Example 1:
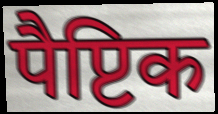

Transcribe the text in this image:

पैप्टिक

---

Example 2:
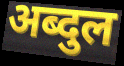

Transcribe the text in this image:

अब्दुल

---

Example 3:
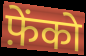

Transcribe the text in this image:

फ़ेंको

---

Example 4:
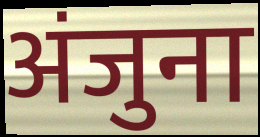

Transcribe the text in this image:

अंजुना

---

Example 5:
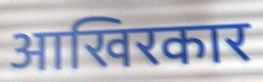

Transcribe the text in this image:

आखिरकार